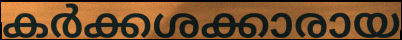
കർക്കശക്കാരായ